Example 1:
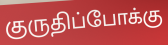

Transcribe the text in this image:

குருதிப்போக்கு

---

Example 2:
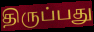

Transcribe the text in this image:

திருப்பது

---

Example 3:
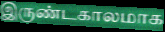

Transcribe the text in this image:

இருண்டகாலமாக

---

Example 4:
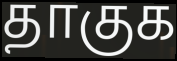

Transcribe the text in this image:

தாகுக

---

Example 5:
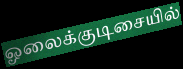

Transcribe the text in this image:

ஓலைக்குடிசையில்